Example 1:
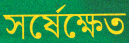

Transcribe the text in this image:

সর্ষেক্ষেত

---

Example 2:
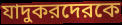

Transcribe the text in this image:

যাদুকরদেরকে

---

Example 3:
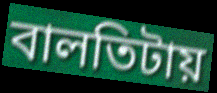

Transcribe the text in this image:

বালতিটায়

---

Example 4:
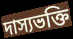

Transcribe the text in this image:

দাস্যভক্তি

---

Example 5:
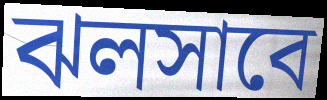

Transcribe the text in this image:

ঝলসাবে